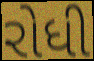
રોધી